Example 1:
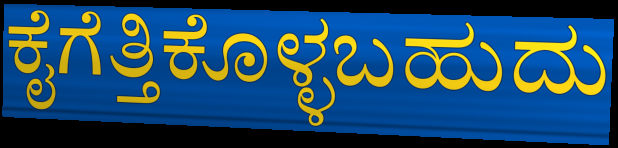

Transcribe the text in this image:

ಕೈಗೆತ್ತಿಕೊಳ್ಳಬಹುದು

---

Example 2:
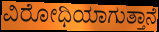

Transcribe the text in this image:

ವಿರೋಧಿಯಾಗುತ್ತಾನೆ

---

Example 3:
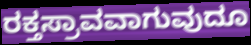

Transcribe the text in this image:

ರಕ್ತಸ್ರಾವವಾಗುವುದೂ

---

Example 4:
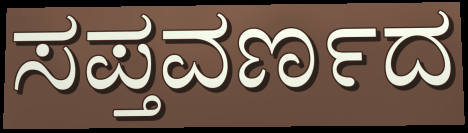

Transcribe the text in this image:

ಸಪ್ತವರ್ಣದ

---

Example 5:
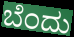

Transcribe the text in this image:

ಬೆಂದು